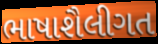
ભાષાશૈલીગત